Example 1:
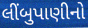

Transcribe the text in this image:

લીંબુપાણીનો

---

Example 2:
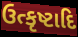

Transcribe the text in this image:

ઉત્કૃષ્ટાદિ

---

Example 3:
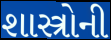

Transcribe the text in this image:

શાસ્ત્રોની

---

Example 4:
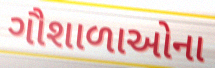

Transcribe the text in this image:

ગૌશાળાઓના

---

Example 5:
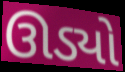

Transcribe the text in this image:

ઊડ્યો